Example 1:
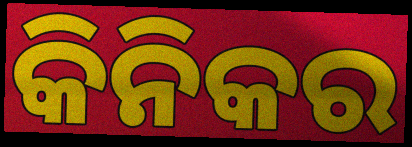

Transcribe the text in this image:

କିନିକର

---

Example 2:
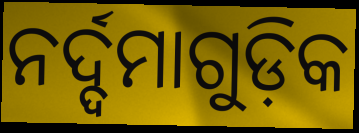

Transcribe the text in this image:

ନର୍ଦ୍ଦମାଗୁଡ଼ିକ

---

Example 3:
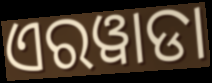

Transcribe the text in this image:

ଏରୱାଡା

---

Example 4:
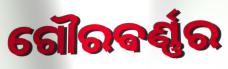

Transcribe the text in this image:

ଗୌରଵର୍ଣ୍ଣର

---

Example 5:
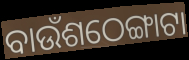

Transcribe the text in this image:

ବାଉଁଶଠେଙ୍ଗାଟା